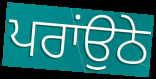
ਪਰਾਂਉਠੇ